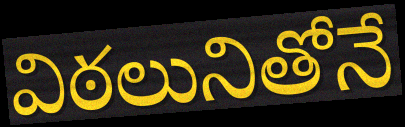
విఠలునితోనే